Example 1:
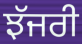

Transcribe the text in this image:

ਝੱਜਰੀ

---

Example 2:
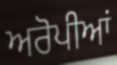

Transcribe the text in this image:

ਅਰੋਪੀਆਂ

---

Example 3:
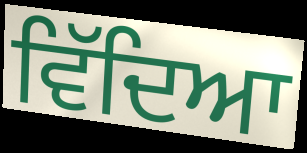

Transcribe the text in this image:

ਵਿੱਦਿਆ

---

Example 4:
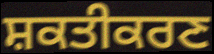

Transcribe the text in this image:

ਸ਼ਕਤੀਕਰਣ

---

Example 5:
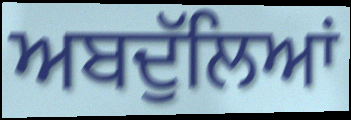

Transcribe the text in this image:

ਅਬਦੁੱਲਿਆਂ